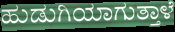
ಹುಡುಗಿಯಾಗುತ್ತಾಳೆ